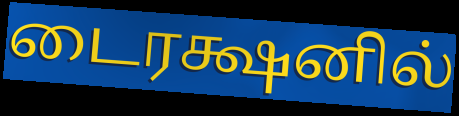
டைரக்ஷனில்